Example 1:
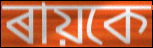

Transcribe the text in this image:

ৰায়কে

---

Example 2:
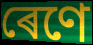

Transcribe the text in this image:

ৰেণে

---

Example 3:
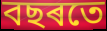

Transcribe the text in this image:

বছৰতে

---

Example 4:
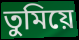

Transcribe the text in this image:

তুমিয়ে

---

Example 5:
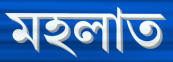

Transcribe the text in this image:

মহলাত